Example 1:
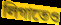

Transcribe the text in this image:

লিগাতেও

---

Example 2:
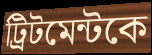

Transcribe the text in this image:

ট্রিটমেন্টকে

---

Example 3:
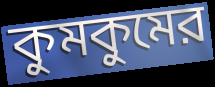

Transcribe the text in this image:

কুমকুমের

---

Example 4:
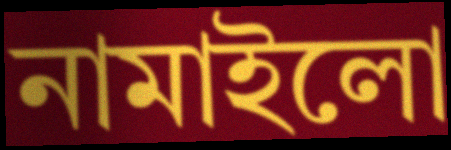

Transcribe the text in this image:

নামাইলো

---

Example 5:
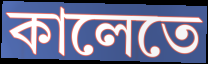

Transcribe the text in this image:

কালেতে